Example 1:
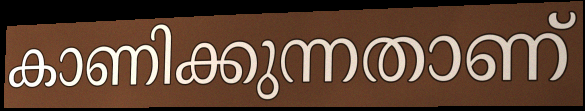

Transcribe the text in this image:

കാണിക്കുന്നതാണ്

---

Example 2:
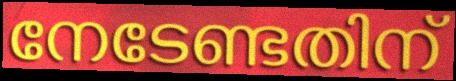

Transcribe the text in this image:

നേടേണ്ടതിന്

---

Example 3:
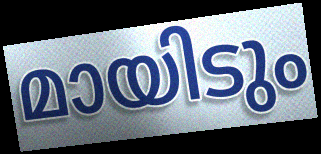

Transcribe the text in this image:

മായിടും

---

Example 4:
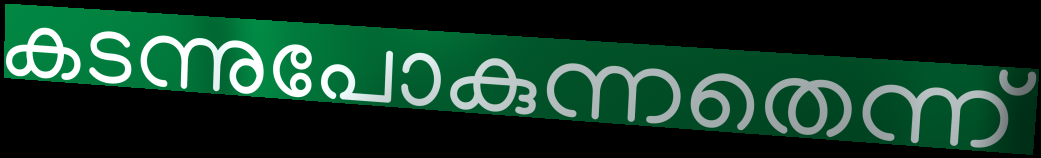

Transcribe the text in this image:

കടന്നുപോകുന്നതെന്ന്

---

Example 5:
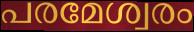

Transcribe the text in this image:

പരമേശ്വരം